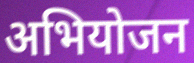
अभियोजन